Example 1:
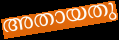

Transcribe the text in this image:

അതായതു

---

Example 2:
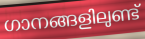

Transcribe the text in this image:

ഗാനങ്ങളിലുണ്ട്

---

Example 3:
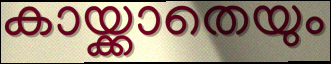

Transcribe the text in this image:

കായ്ക്കാതെയും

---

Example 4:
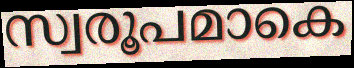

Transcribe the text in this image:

സ്വരൂപമാകെ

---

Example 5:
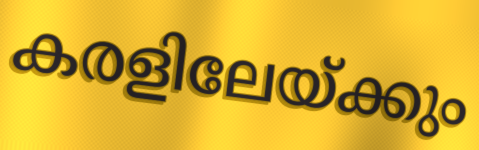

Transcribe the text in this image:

കരളിലേയ്ക്കും